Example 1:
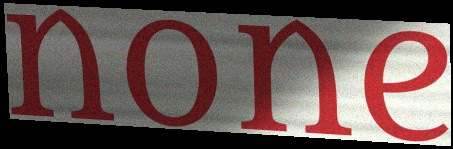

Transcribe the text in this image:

none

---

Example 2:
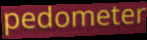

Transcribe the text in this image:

pedometer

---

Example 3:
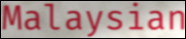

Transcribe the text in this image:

Malaysian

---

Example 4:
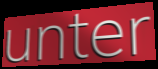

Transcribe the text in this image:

unter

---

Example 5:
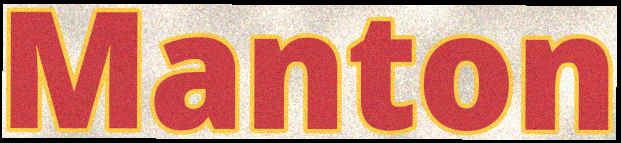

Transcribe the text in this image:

Manton